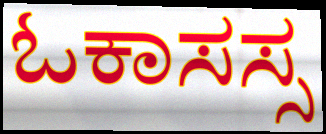
ಓಕಾಸಸ್ಸ